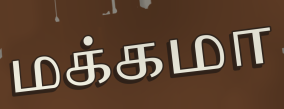
மக்கமா